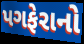
પગફેરાનો